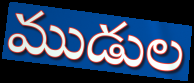
ముడుల